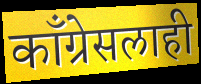
काँग्रेसलाही